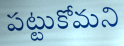
పట్టుకోమని